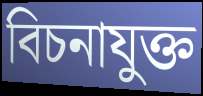
বিচনাযুক্ত